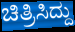
ಚಿತ್ರಿಸಿದ್ದು